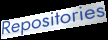
Repositories